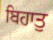
ਬਿਹਾਤੁ